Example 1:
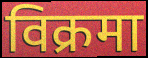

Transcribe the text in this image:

विक्रमा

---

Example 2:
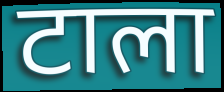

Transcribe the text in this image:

टाला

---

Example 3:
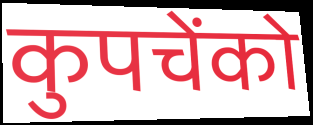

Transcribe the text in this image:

कुपचेंको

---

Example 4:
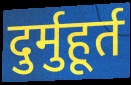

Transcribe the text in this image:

दुर्मुहूर्त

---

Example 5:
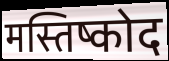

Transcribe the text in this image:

मस्तिष्कोद